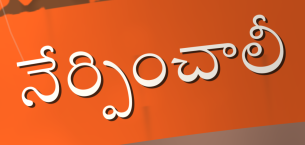
నేర్పించాలీ